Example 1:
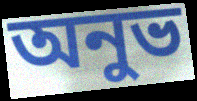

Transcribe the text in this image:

অনুভ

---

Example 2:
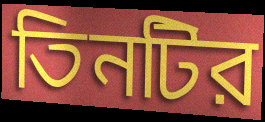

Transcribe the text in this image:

তিনটির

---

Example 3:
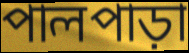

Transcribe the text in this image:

পালপাড়া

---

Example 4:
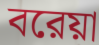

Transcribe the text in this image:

বরেয়া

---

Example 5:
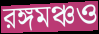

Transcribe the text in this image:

রঙ্গমঞ্চও